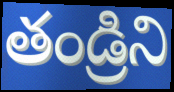
తండ్రిని